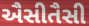
ઐસીતૈસી